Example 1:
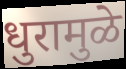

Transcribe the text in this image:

धुरामुळे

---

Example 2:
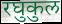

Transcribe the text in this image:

रघुकुल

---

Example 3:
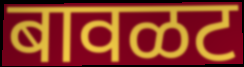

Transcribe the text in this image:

बावळट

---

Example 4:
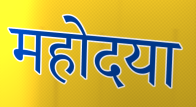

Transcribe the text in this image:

महोदया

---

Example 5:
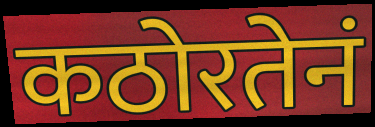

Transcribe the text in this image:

कठोरतेनं